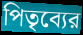
পিতৃব্যের